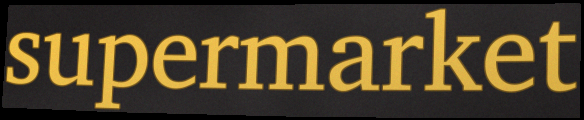
supermarket